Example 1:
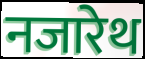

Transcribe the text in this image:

नजारेथ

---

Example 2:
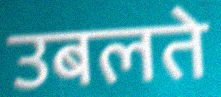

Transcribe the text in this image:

उबलते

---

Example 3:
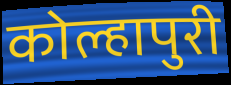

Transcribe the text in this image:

कोल्हापुरी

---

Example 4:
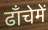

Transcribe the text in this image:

ढाँचेमें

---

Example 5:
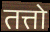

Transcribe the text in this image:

तत्तो